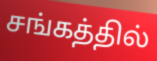
சங்கத்தில்